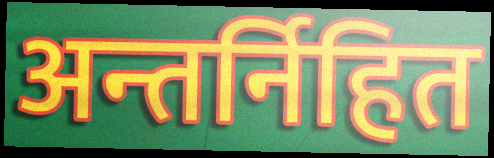
अन्तर्निहित